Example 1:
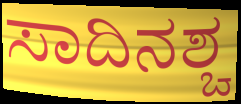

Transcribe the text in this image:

ಸಾದಿನಶ್ಚ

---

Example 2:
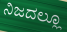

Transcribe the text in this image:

ನಿಜದಲ್ಲೂ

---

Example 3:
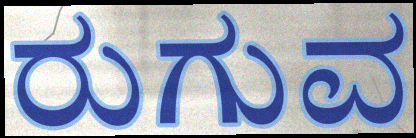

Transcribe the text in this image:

ರುಗುವ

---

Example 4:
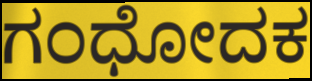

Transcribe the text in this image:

ಗಂಧೋದಕ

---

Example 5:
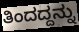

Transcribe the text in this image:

ತಿಂದದ್ದನ್ನು